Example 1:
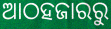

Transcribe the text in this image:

ଆଠହଜାରରୁ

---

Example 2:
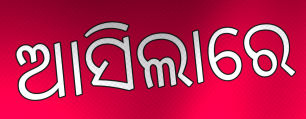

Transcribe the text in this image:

ଆସିଲାରେ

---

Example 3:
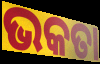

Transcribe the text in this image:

ଭକତା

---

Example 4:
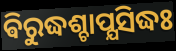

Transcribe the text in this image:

ଵିରୁଦ୍ଧଶ୍ଚାପ୍ଯସିଦ୍ଧଃ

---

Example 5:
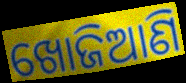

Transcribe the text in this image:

ଖୋଜିଆଣି